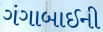
ગંગાબાઈની